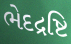
ભેદદ્રષ્ટિ